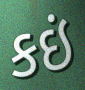
કઇં